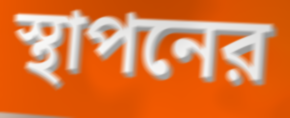
স্থাপনের